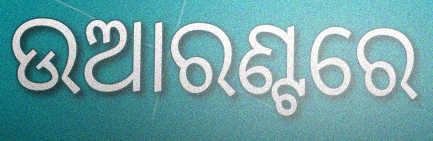
ଉଆରଣ୍ଟରେ